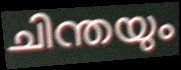
ചിന്തയും